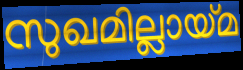
സുഖമില്ലായ്മ